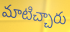
మాటిచ్చారు